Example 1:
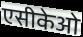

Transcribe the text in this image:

एसीकेओ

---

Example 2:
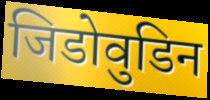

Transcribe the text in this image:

जिडोवुडिन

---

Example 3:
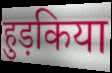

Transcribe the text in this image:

हुड़किया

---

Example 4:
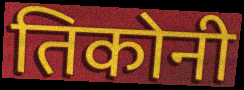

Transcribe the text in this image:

तिकोनी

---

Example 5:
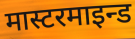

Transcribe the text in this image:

मास्टरमाइन्ड